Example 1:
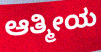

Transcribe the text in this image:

ಆತ್ಮೀಯ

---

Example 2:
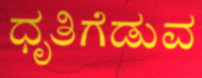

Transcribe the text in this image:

ಧೃತಿಗೆಡುವ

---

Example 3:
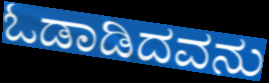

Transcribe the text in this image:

ಓಡಾಡಿದವನು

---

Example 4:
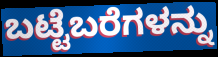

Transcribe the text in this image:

ಬಟ್ಟೆಬರೆಗಳನ್ನು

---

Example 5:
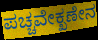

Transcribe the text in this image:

ಪಚ್ಚವೇಕ್ಖಣೇನ